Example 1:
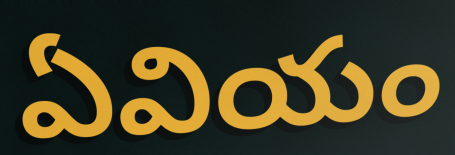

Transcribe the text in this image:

ఏవియం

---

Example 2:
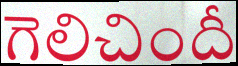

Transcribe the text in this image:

గెలిచిందీ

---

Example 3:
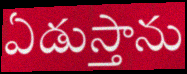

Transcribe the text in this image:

ఏడుస్తాను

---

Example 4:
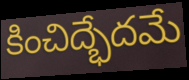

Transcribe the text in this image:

కించిద్భేదమే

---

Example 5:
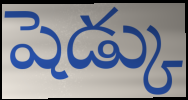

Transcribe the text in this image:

షెడ్కు